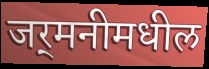
जर्मनीमधील